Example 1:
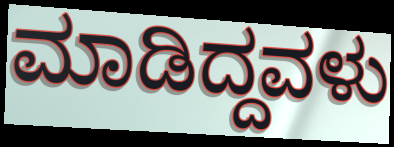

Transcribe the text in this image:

ಮಾಡಿದ್ದವಳು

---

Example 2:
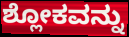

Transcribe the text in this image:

ಶ್ಲೋಕವನ್ನು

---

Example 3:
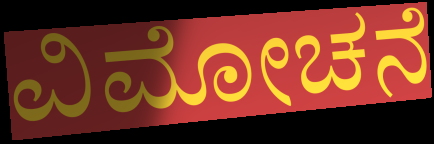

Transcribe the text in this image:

ವಿಮೋಚನೆ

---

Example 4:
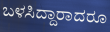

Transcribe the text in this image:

ಬಳಸಿದ್ದಾರಾದರೂ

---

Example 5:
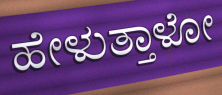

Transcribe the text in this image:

ಹೇಳುತ್ತಾಳೋ